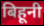
बिहूनी